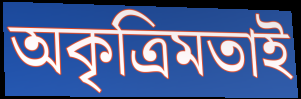
অকৃত্রিমতাই